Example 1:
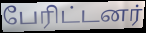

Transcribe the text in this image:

பேரிட்டனர்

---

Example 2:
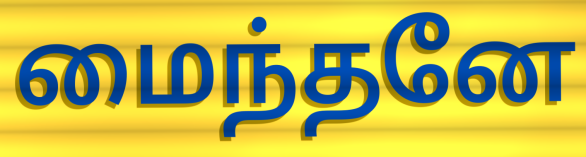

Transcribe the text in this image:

மைந்தனே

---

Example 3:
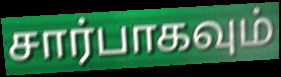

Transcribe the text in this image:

சார்பாகவும்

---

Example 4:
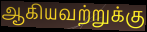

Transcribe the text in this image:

ஆகியவற்றுக்கு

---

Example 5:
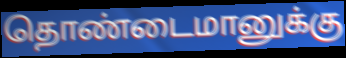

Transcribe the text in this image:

தொண்டைமானுக்கு